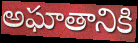
అఘాతానికి